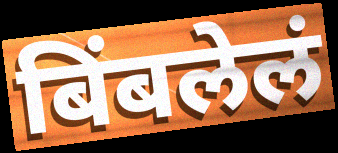
बिंबलेलं